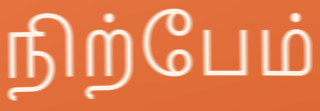
நிற்பேம்